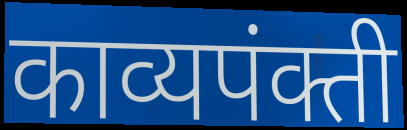
काव्यपंक्ती